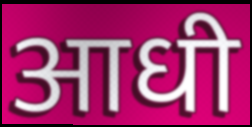
आधी